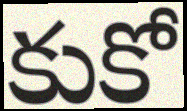
కుకో